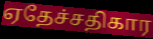
ஏதேச்சதிகார